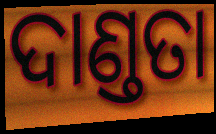
ଦାଣ୍ଡତା